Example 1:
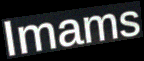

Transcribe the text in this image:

Imams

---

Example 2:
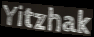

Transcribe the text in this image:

Yitzhak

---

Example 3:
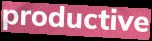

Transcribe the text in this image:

productive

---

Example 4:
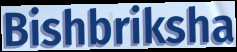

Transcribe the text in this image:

Bishbriksha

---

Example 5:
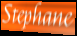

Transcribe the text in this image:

Stephane